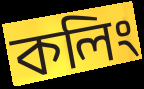
কলিং